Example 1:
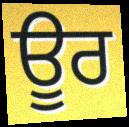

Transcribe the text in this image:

ਊਰ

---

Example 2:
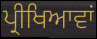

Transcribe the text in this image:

ਪ੍ਰੀਖਿਆਵਾਂ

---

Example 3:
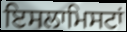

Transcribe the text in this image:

ਇਸਲਾਮਿਸਟਾਂ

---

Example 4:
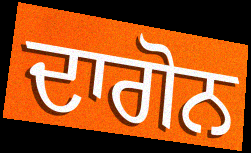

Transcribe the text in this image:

ਦਾਗੋਨ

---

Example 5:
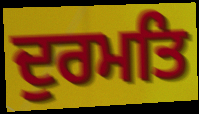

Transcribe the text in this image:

ਦੁਰਮਤਿ